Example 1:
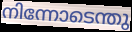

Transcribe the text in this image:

നിന്നോടെന്തു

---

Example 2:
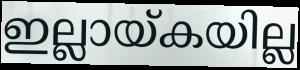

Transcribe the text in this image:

ഇല്ലായ്കയില്ല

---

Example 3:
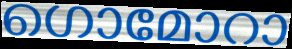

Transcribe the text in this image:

ഗൊമോറാ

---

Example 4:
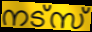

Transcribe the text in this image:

നട്സ്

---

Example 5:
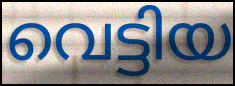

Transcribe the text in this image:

വെട്ടിയ